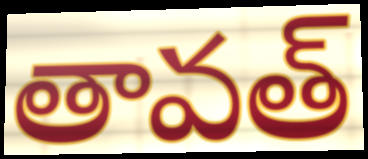
తావత్